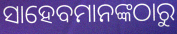
ସାହେବମାନଙ୍କଠାରୁ